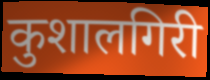
कुशालगिरी